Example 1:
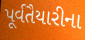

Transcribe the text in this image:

પૂર્વતૈયારીના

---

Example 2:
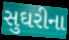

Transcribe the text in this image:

સુઘરીના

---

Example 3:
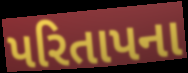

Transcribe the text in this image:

પરિતાપના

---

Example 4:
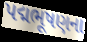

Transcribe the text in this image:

પદ્મભૂષણના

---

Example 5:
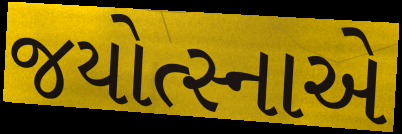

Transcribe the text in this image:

જયોત્સ્નાએ